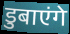
डुबाएंगे